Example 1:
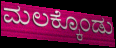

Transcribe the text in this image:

ಮಲಕ್ಕೊಂಡು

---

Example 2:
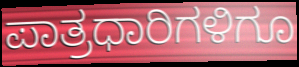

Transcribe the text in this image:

ಪಾತ್ರಧಾರಿಗಳಿಗೂ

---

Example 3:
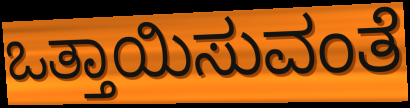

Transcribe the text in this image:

ಒತ್ತಾಯಿಸುವಂತೆ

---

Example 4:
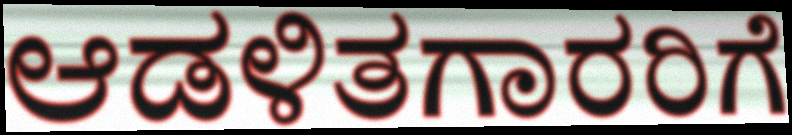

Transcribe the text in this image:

ಆಡಳಿತಗಾರರಿಗೆ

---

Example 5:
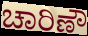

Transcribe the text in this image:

ಚಾರಿಣೌ